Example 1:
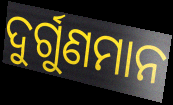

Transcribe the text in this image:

ଦୁର୍ଗୁଣମାନ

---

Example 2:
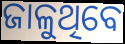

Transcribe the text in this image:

ଜାଳୁଥିବେ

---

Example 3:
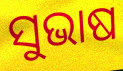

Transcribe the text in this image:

ସୁଭାଷ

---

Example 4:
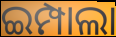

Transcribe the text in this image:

ଇମ୍ପାଲା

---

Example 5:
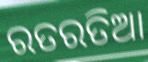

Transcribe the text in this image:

ରତରତିଆ